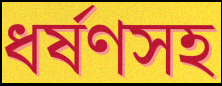
ধর্ষণসহ